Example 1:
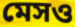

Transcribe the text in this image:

মেসও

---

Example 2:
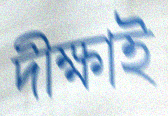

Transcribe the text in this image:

দীক্ষাই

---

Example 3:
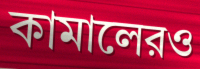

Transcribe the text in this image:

কামালেরও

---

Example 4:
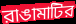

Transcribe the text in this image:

রাঙামাটির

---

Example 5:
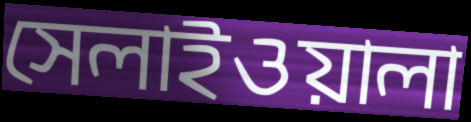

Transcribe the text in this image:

সেলাইওয়ালা